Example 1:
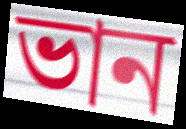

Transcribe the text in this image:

ভান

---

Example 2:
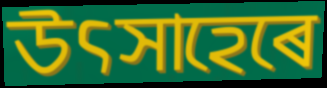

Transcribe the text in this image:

উৎসাহেৰে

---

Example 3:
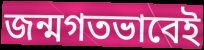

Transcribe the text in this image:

জন্মগতভাবেই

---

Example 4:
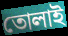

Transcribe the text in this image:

তোলাই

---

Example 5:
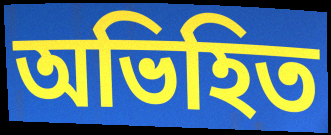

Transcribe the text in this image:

অভিহিত